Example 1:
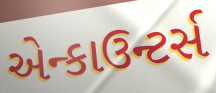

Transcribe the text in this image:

એન્કાઉન્ટર્સ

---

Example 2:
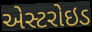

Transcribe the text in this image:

એસ્ટરોઇડ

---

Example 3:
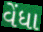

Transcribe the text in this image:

વેંધા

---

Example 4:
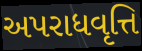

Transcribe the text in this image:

અપરાધવૃત્તિ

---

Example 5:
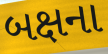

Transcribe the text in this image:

બક્ષના